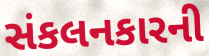
સંકલનકારની